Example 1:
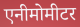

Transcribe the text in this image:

एनीमोमीटर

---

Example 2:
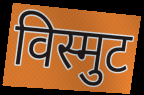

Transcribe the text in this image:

विस्मुट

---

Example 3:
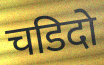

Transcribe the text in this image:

चडिदो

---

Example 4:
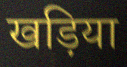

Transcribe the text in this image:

खड़िया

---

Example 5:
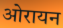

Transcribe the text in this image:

ओरायन